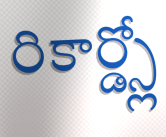
రికార్డ్స్లో